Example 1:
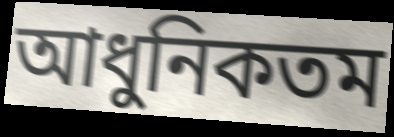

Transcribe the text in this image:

আধুনিকতম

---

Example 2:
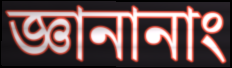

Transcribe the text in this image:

জ্ঞানানাং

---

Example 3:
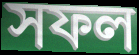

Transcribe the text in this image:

সফল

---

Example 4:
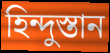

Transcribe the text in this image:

হিন্দুস্তান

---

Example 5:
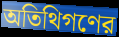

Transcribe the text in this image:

অতিথিগণের